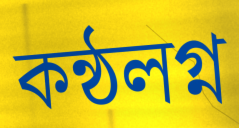
কন্ঠলগ্ন